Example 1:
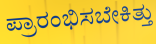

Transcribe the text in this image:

ಪ್ರಾರಂಭಿಸಬೇಕಿತ್ತು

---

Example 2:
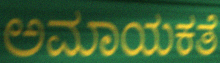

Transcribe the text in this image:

ಅಮಾಯಕತೆ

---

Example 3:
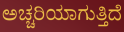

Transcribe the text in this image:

ಅಚ್ಚರಿಯಾಗುತ್ತಿದೆ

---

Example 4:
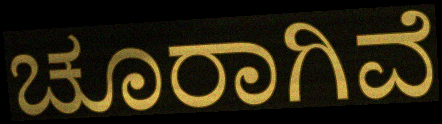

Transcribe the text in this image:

ಚೂರಾಗಿವೆ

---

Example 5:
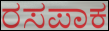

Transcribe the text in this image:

ರಸಪಾಕ